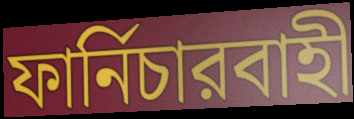
ফার্নিচারবাহী